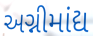
અગ્નીમાંદ્ય